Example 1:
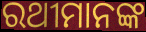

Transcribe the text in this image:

ରଥୀମାନଙ୍କ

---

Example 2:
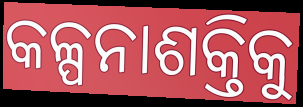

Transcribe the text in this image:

କଳ୍ପନାଶକ୍ତିକୁ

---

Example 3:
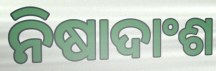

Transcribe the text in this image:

ନିଷାଦାଂଶ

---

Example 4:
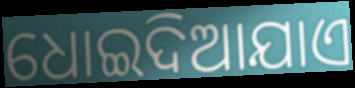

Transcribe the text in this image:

ଧୋଇଦିଆଯାଏ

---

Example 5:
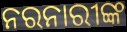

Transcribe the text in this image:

ନରନାରୀଙ୍କ